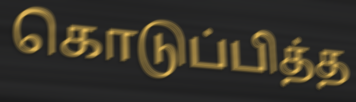
கொடுப்பித்த